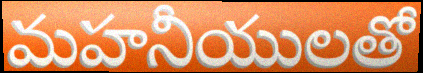
మహనీయులతో